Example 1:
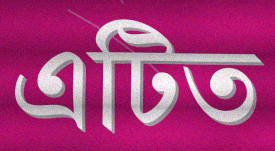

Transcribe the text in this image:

এটিত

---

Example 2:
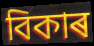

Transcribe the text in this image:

বিকাৰ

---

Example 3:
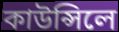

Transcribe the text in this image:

কাউন্সিলে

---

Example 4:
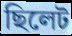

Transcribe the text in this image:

ছিলেট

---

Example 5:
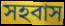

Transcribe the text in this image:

সহবাস